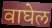
वाघेल